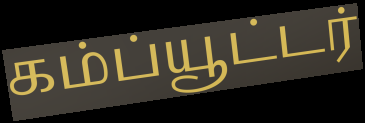
கம்ப்யூட்டர்